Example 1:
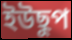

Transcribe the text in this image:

ইউছুপ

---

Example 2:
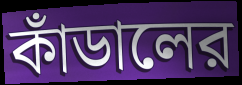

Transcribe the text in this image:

কাঁডালের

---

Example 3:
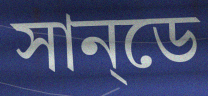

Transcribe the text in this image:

সান্‌ডে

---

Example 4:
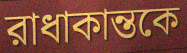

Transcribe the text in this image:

রাধাকান্তকে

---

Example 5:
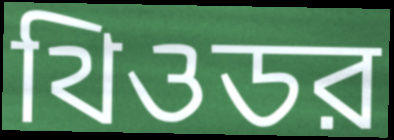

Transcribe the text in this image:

থিওডর